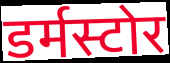
डर्मस्टोर